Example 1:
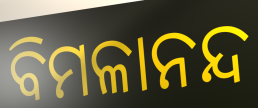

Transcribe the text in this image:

ବିମଳାନନ୍ଦ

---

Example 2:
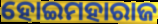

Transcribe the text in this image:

ହୋଇମହାରାଜ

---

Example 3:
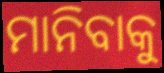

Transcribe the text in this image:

ମାନିବାକୁ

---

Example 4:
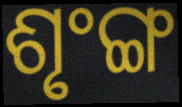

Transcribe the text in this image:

ଶୃଂଙ୍ଗ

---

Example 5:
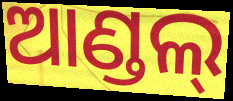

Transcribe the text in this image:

ଆଣ୍ଡଲ୍